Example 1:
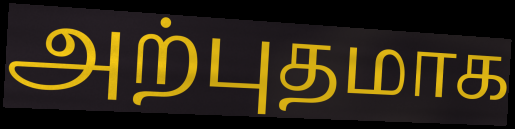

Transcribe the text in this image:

அற்புதமாக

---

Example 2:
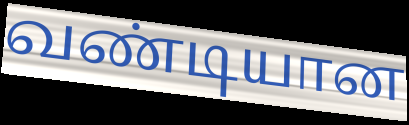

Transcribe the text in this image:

வண்டியான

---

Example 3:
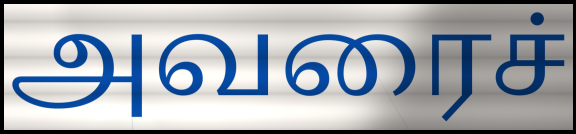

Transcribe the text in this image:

அவரைச்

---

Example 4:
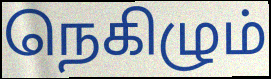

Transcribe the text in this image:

நெகிழும்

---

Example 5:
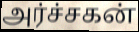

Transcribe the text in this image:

அர்ச்சகன்